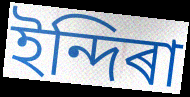
ইন্দিৰা